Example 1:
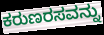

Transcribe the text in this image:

ಕರುಣರಸವನ್ನು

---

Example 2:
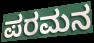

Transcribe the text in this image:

ಪರಮನ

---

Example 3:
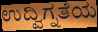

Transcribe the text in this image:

ಉದ್ವಿಗ್ನತೆಯ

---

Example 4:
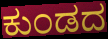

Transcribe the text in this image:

ಕುಂಡದ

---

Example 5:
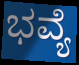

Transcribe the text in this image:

ಭವ್ಯೆ